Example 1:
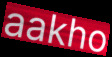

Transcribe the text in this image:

aakho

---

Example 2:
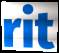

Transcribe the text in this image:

rit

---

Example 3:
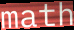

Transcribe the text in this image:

math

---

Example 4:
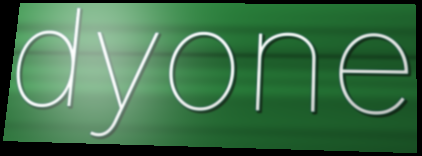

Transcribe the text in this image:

dyone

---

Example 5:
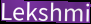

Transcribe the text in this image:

Lekshmi